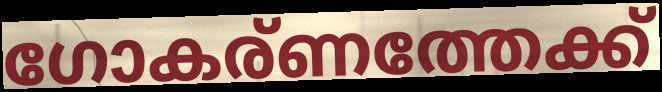
ഗോകര്ണത്തേക്ക്